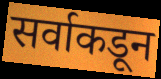
सर्वाकडून